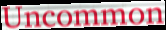
Uncommon